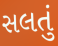
સલતું